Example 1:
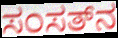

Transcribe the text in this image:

ಸಂಸತ್‌ನ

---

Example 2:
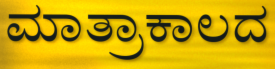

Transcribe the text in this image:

ಮಾತ್ರಾಕಾಲದ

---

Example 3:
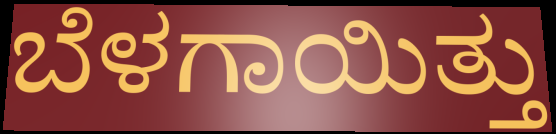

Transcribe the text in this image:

ಬೆಳಗಾಯಿತ್ತು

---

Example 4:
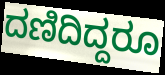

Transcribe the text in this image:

ದಣಿದಿದ್ದರೂ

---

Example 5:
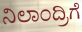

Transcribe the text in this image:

ನಿಲಾಂದ್ರಿಗೆ